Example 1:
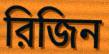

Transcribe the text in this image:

রিজিন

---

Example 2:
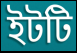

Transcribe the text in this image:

ইটটি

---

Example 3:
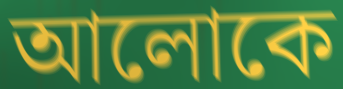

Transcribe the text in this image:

আলোকে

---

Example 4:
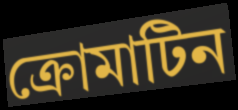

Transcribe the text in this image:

ক্রোমাটিন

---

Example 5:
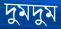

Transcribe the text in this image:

দুমদুম